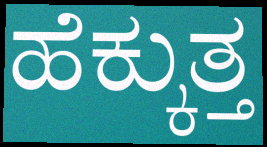
ಹೆಕ್ಕುತ್ತ